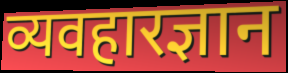
व्यवहारज्ञान